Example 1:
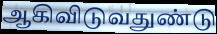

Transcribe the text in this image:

ஆகிவிடுவதுண்டு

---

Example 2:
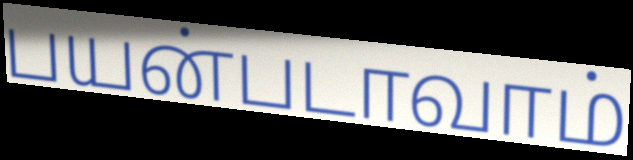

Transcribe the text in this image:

பயன்படாவாம்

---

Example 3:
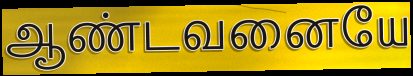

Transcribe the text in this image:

ஆண்டவனையே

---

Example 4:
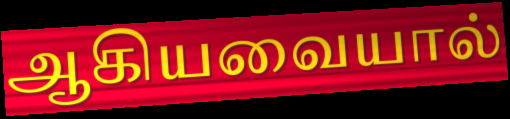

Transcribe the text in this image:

ஆகியவையால்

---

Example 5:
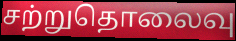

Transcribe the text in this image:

சற்றுதொலைவு